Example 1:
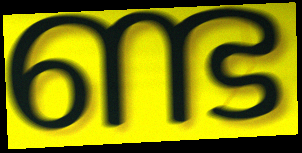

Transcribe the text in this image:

ണ്ട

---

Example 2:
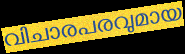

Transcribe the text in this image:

വിചാരപരവുമായ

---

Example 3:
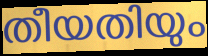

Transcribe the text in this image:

തീയതിയും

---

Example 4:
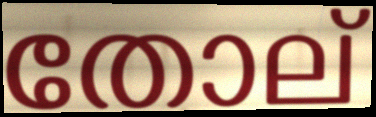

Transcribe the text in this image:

തോല്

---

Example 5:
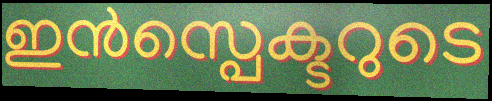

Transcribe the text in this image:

ഇൻസ്പെക്ടറുടെ